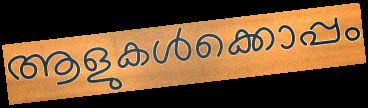
ആളുകൾക്കൊപ്പം